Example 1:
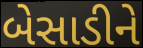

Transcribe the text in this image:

બેસાડીને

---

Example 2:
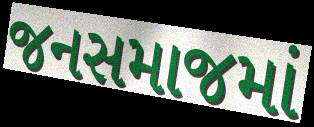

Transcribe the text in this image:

જનસમાજમાં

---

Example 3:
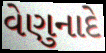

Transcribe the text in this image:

વેણુનાદે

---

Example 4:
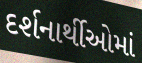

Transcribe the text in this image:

દર્શનાર્થીઓમાં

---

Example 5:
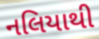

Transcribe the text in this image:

નલિયાથી